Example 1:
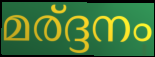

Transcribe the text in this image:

മര്ദ്ദനം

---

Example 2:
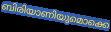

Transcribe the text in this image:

ബിരിയാണിയുമൊക്കെ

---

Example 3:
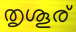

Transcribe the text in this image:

തൃശൂര്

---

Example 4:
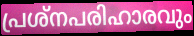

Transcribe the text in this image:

പ്രശ്നപരിഹാരവും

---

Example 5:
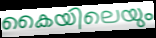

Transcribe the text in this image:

കൈയിലെയും